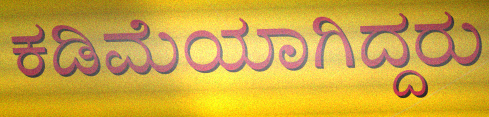
ಕಡಿಮೆಯಾಗಿದ್ದರು